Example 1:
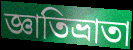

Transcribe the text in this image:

জ্ঞাতিভ্রাতা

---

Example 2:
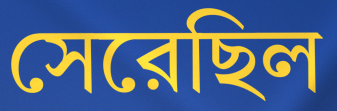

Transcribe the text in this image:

সেরেছিল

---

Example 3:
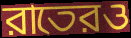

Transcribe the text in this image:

রাতেরও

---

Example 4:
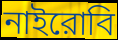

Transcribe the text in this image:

নাইরোবি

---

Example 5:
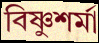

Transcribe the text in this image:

বিষ্ণুশর্মা